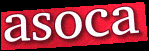
asoca